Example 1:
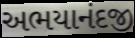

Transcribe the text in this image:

અભયાનંદજી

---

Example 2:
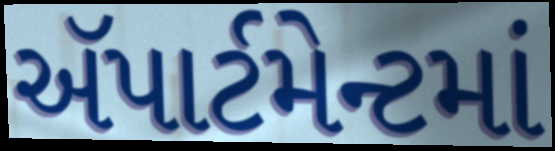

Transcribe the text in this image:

ઍપાર્ટમેન્ટમાં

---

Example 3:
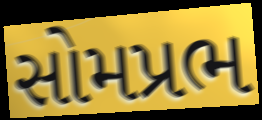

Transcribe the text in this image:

સોમપ્રભ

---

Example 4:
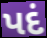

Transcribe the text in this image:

પદં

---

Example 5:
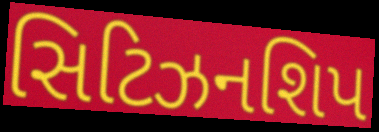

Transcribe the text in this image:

સિટિઝનશિપ